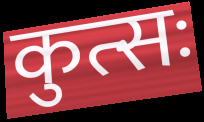
कुत्सः